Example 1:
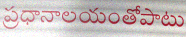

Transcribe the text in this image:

ప్రధానాలయంతోపాటు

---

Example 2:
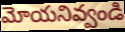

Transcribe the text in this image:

మోయనివ్వండి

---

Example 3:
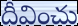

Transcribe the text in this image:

దీవించు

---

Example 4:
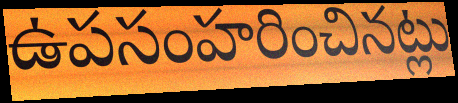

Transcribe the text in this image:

ఉపసంహరించినట్లు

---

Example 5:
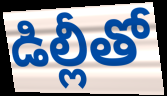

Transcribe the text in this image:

డిల్లీతో